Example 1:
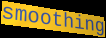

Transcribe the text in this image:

smoothing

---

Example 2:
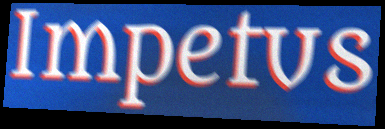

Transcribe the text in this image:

Impetus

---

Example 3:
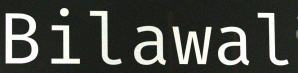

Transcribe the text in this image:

Bilawal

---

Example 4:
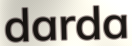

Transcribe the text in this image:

darda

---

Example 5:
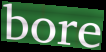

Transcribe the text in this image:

bore